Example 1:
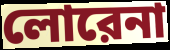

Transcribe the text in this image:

লোরেনা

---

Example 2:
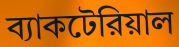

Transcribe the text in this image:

ব্যাকটেরিয়াল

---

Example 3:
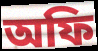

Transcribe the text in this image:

অফি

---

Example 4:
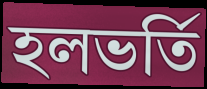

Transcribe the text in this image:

হলভর্তি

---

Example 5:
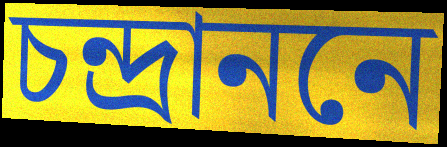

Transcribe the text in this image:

চন্দ্রাননে